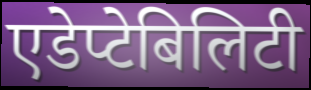
एडेप्टेबिलिटी